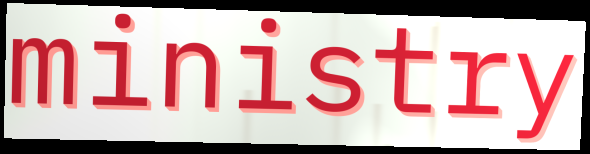
ministry